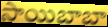
సాయిబాబా